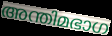
അന്തിമഭാഗ